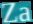
Za